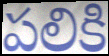
పలికి